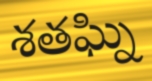
శతఘ్ని